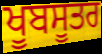
ਖੂਬਸੂਤਰ